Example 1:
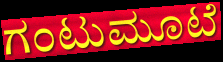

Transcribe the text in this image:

ಗಂಟುಮೂಟೆ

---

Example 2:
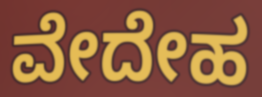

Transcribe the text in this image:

ವೇದೇಹ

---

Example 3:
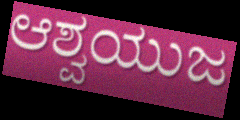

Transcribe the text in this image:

ಆಶ್ವಯುಜ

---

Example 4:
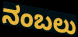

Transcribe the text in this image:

ನಂಬಲು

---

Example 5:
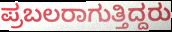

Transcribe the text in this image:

ಪ್ರಬಲರಾಗುತ್ತಿದ್ದರು